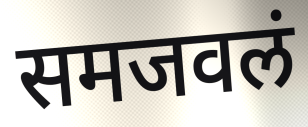
समजवलं